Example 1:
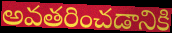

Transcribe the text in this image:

అవతరించడానికి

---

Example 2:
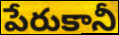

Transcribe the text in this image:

పేరుకానీ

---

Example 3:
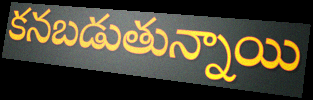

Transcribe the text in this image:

కనబడుతున్నాయి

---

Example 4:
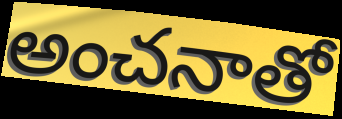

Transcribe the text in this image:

అంచనాతో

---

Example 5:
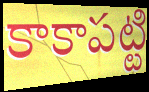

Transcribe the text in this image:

కాకాపట్టి